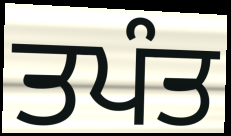
ਤਪੰਤ